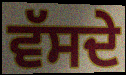
ਵੱਸਦੇ